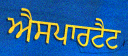
ਐਸਪਾਰਟੈਟ